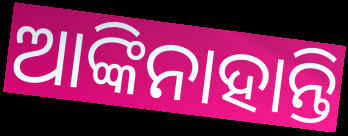
ଆଙ୍କିନାହାନ୍ତି